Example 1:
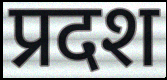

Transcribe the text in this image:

प्रदश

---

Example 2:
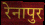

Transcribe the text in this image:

रेनापुर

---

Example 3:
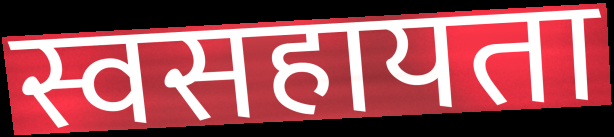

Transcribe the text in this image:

स्‍वसहायता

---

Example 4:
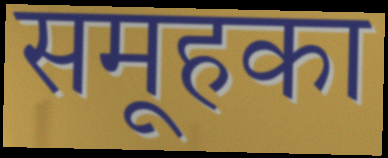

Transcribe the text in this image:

समूहका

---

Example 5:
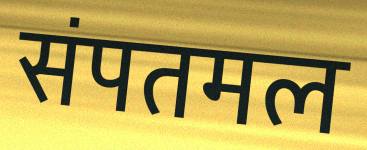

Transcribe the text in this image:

संपतमल